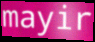
mayir